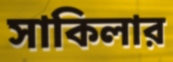
সাকিলার